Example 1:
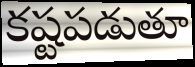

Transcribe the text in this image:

కష్టపడుతూ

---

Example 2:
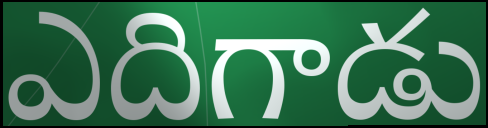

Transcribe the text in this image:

ఎదిగాడు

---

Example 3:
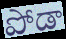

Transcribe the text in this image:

పోడా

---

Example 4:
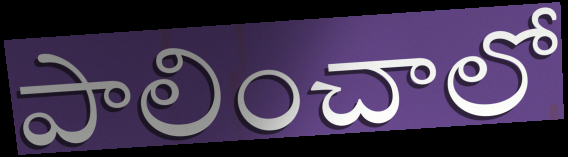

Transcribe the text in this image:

పాలించాలో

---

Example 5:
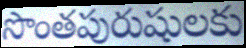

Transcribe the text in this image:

సొంతపురుషులకు